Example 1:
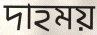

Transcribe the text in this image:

দাহময়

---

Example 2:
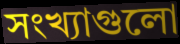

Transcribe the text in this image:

সংখ্যাগুলো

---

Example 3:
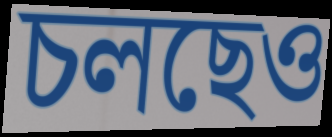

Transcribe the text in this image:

চলছেও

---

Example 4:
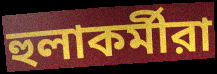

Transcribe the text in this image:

হুলাকর্মীরা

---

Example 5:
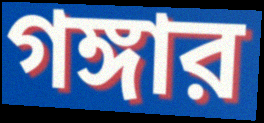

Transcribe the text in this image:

গঙ্গার